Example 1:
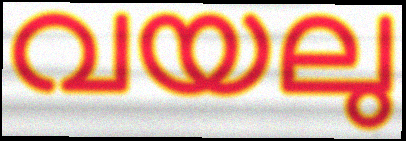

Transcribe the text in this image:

വയലു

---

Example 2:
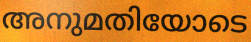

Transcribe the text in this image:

അനുമതിയോടെ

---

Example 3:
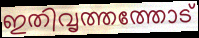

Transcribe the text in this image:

ഇതിവൃത്തത്തോട്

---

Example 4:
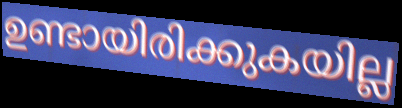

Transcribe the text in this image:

ഉണ്ടായിരിക്കുകയില്ല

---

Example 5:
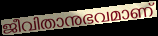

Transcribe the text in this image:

ജീവിതാനുഭവമാണ്